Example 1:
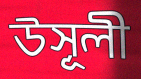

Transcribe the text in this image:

উসূলী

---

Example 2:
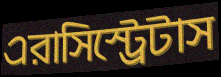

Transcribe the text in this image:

এরাসিস্ট্রেটাস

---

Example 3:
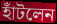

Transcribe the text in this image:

হাঁটলেন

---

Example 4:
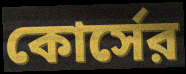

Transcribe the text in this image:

কোর্সের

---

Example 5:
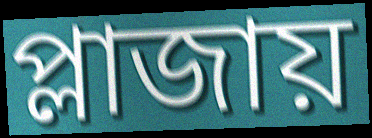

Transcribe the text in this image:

প্লাজায়